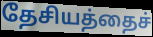
தேசியத்தைச்